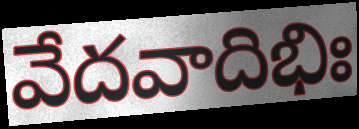
వేదవాదిభిః